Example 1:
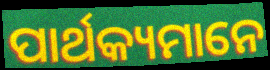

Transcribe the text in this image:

ପାର୍ଥକ୍ୟମାନେ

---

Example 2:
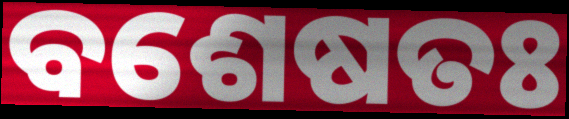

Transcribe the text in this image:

ବଶେଷତଃ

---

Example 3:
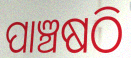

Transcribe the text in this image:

ପାଞ୍ଚଷଠି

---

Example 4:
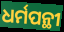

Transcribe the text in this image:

ଧର୍ମପନ୍ଥୀ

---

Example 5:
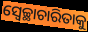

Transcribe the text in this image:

ସ୍ଵେଚ୍ଛାଚାରିତାକୁ